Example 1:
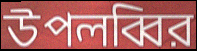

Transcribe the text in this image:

উপলব্বির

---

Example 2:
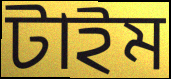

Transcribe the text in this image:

টাইম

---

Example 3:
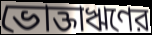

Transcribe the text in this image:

ভোক্তাঋণের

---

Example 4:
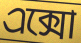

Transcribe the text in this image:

এক্সো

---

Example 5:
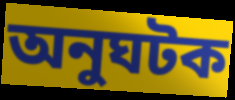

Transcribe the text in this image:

অনুঘটক